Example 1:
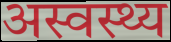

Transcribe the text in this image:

अस्वस्थ्य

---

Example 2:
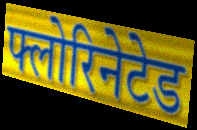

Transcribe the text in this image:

फ्लोरिनेटेड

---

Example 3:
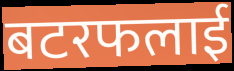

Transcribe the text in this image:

बटरफलाई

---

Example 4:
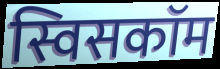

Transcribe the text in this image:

स्विसकॉम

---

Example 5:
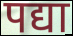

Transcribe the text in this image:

पद्या